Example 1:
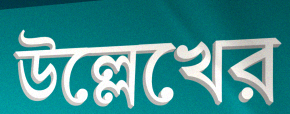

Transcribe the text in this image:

উল্লেখের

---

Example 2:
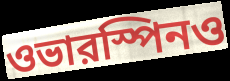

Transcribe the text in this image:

ওভারস্পিনও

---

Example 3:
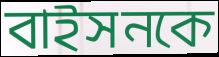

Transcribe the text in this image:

বাইসনকে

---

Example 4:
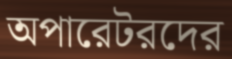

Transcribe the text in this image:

অপারেটরদের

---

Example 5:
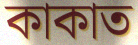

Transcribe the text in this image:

কাকাত